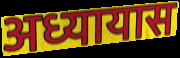
अध्यायास